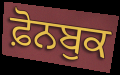
ਫ਼ੋਨਬੁਕ